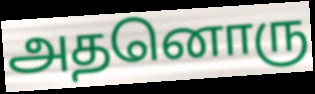
அதனொரு